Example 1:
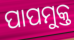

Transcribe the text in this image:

ପାପମୁକ୍ତ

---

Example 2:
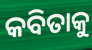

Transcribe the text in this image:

କବିତାକୁ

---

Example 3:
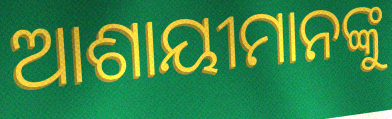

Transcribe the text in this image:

ଆଶାୟୀମାନଙ୍କୁ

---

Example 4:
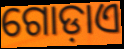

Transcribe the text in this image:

ଗୋଡ଼ାଏ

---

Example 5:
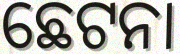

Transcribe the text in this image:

ଛେଟନା